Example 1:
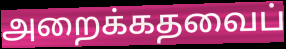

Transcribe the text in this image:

அறைக்கதவைப்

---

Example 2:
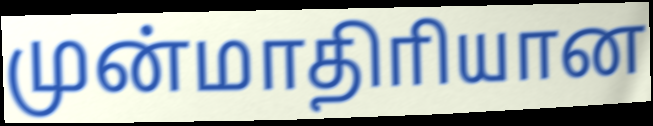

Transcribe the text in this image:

முன்மாதிரியான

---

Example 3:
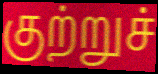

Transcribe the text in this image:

குற்றுச்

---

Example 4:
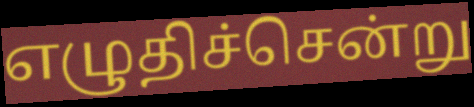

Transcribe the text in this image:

எழுதிச்சென்று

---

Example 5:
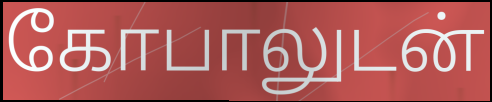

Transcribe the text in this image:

கோபாலுடன்